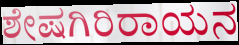
ಶೇಷಗಿರಿರಾಯನ